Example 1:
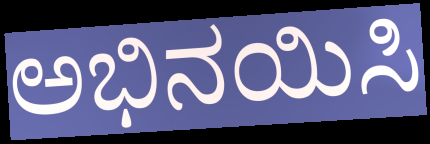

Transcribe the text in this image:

ಅಭಿನಯಿಸಿ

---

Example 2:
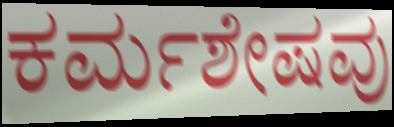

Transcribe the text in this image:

ಕರ್ಮಶೇಷವು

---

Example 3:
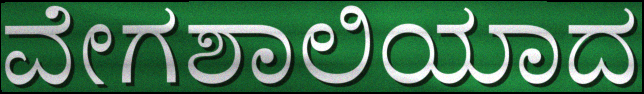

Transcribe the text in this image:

ವೇಗಶಾಲಿಯಾದ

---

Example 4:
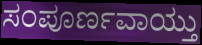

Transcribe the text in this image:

ಸಂಪೂರ್ಣವಾಯ್ತು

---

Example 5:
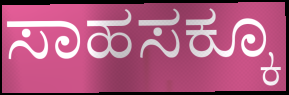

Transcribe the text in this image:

ಸಾಹಸಕ್ಕೂ